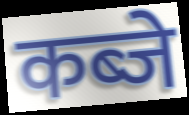
कब्‍जे